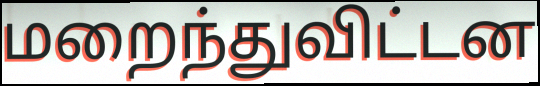
மறைந்துவிட்டன